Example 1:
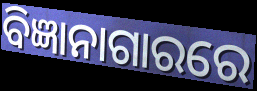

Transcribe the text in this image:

ବିଜ୍ଞାନାଗାରରେ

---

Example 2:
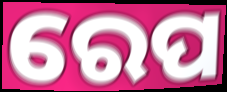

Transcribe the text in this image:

ରେପ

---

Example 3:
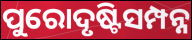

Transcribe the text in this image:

ପୁରୋଦୃଷ୍ଟିସମ୍ପନ୍ନ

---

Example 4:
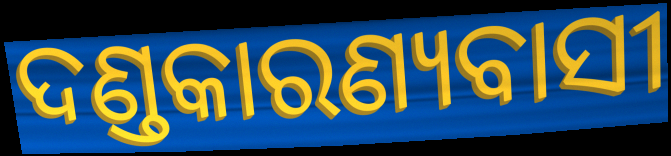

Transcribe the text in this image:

ଦଣ୍ଡକାରଣ୍ୟବାସୀ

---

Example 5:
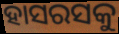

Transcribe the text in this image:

ହାସରସକୁ